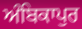
ਅੰਬਿਕਾਪੁਰ